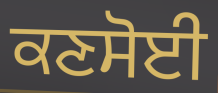
ਕਣਸੋਈ